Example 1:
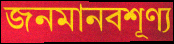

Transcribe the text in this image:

জনমানবশূণ্য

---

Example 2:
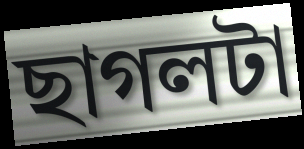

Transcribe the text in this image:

ছাগলটা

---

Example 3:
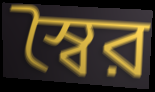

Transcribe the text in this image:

স্বৈর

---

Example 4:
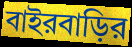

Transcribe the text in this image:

বাইরবাড়ির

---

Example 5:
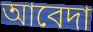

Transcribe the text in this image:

আবেদা